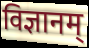
विज्ञानम्